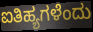
ಐತಿಹ್ಯಗಳೆಂದು